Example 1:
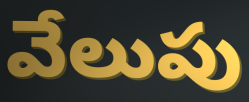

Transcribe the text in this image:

వేలుపు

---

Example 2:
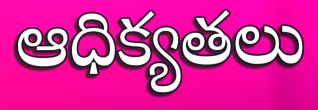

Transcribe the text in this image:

ఆధిక్యతలు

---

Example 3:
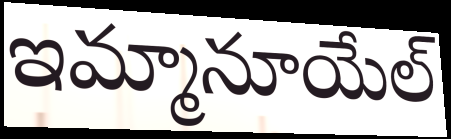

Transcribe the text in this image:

ఇమ్మానూయేల్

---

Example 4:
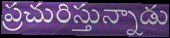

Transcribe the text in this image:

ప్రచురిస్తున్నాడు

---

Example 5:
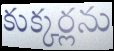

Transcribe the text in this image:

కుక్కర్లను